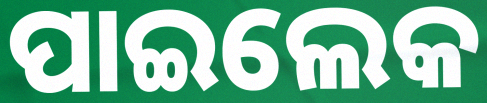
ପାଇଲେକ